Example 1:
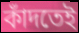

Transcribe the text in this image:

কাঁদতেই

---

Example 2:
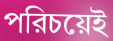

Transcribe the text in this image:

পরিচয়েই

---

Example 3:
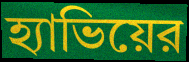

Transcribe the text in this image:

হ্যাভিয়ের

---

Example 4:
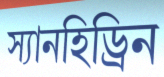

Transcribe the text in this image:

স্যানহিড্রিন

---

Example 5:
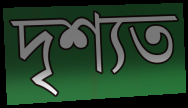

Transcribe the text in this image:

দৃশ্যত